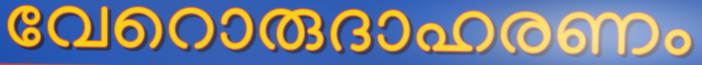
വേറൊരുദാഹരണം